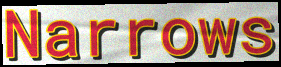
Narrows